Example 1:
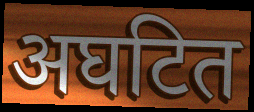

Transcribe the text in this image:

अघटित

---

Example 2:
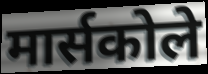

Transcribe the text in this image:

मार्सकोले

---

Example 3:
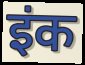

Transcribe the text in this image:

इंक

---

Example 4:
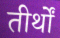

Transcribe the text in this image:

तीर्थों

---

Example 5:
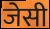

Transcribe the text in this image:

जेसी